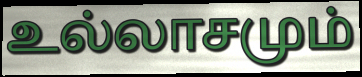
உல்லாசமும்